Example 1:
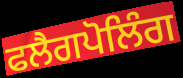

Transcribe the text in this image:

ਫਲੈਗਪੋਲਿੰਗ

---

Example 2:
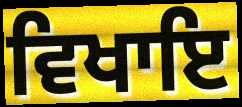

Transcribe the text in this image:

ਵਿਖਾਇ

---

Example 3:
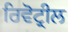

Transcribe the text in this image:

ਰਿਵੋਟ੍ਰੀਲ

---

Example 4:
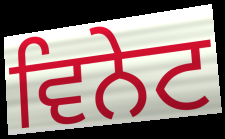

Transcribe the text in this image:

ਵਿਨੇਟ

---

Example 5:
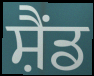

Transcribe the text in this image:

ਸ਼ੈਂਡ